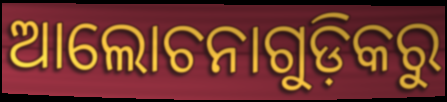
ଆଲୋଚନାଗୁଡ଼ିକରୁ